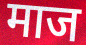
माज